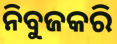
ନିବୁଜକରି